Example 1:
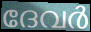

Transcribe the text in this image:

ദേവർ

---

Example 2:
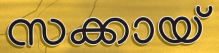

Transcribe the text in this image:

സക്കായ്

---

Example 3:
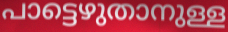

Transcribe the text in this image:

പാട്ടെഴുതാനുള്ള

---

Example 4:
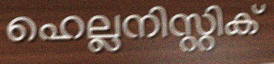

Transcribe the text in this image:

ഹെല്ലനിസ്റ്റിക്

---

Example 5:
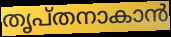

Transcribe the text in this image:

തൃപ്തനാകാൻ